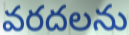
వరదలను